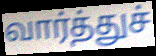
வார்த்துச்